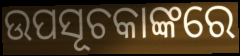
ଉପସୂଚକାଙ୍କରେ